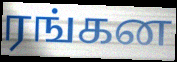
ரங்கன